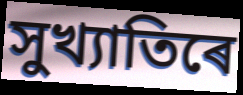
সুখ্যাতিৰে